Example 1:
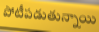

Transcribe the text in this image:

పోటీపడుతున్నాయి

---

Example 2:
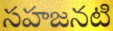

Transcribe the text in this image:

సహజనటి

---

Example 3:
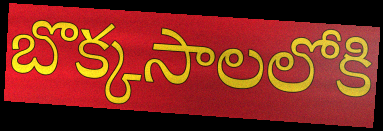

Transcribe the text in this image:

బొక్కసాలలోకి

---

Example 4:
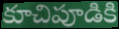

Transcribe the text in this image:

కూచిపూడికి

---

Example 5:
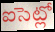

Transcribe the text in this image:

ఐసెట్లో